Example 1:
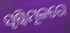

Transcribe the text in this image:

ସୃଷ୍ଟିମୂଳରେ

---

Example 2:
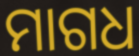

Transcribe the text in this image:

ମାଗଧ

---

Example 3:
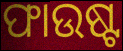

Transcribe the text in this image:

ଫାଉଷ୍ଟ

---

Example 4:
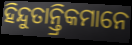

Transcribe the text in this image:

ହିନ୍ଦୁତାନ୍ତ୍ରିକମାନେ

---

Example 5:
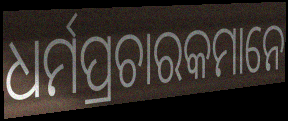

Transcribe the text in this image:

ଧର୍ମପ୍ରଚାରକମାନେ